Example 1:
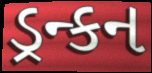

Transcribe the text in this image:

ડ્રન્કન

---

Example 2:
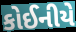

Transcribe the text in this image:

કોઈનીયે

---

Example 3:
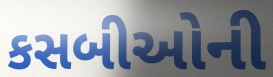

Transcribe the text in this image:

કસબીઓની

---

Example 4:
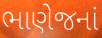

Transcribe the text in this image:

ભાણેજનાં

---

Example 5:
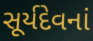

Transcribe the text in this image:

સૂર્યદેવનાં